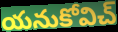
యనుకోవిచ్